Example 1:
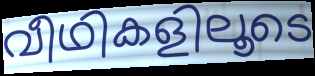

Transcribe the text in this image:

വീഥികളിലൂടെ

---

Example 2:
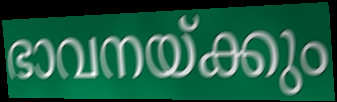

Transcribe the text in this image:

ഭാവനയ്ക്കും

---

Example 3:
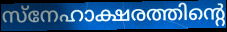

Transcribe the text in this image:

സ്നേഹാക്ഷരത്തിന്റെ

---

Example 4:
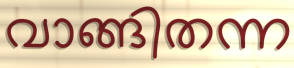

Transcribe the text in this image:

വാങ്ങിതന്ന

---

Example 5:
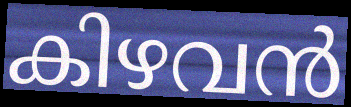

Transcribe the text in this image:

കിഴവൻ